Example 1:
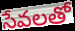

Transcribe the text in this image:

సేవలతో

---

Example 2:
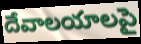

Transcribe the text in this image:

దేవాలయాలపై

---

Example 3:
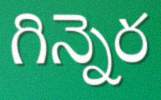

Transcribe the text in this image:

గిన్నెర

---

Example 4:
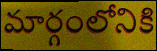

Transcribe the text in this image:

మార్గంలోనికి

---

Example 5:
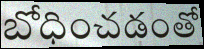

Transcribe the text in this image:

బోధించడంతో